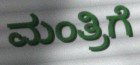
ಮಂತ್ರಿಗೆ